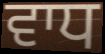
ਵਾਧ